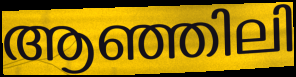
ആഞ്ഞിലി